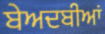
ਬੇਅਦਬੀਆਂ